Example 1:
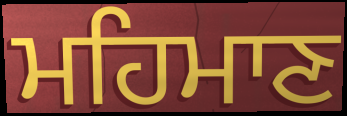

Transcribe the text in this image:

ਮਹਿਮਾਣ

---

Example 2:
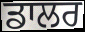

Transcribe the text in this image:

ਡਾਲਰ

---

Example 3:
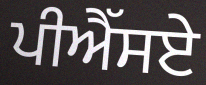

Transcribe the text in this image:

ਪੀਐੱਸਏ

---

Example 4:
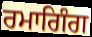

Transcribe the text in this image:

ਰਮਾਗਿੰਗ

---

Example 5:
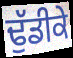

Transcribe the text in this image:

ਢੁੱਡੀਕੇ